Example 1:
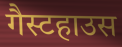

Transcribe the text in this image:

गैस्टहाउस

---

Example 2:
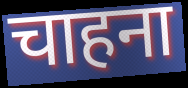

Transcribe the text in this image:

चाहना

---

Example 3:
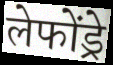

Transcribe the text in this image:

लेफोंड्रे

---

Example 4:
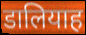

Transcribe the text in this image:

डालियाह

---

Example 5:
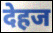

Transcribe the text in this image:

देहज